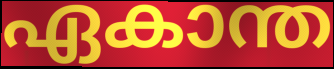
ഏകാന്ത